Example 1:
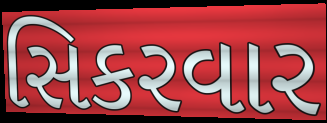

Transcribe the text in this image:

સિકરવાર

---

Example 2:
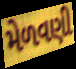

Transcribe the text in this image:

મેળવણી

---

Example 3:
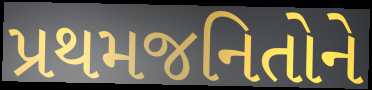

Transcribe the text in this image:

પ્રથમજનિતોને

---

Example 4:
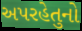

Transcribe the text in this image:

અપરહેતુનો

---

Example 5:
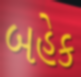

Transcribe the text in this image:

બહેક